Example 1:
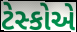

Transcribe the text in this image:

ટેસ્કોએ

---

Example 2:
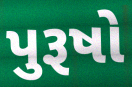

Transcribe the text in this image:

પુરૂષો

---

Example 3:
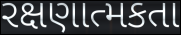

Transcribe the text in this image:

રક્ષણાત્મકતા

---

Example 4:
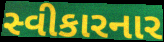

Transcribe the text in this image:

સ્વીકારનાર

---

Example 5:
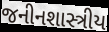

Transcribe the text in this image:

જનીનશાસ્ત્રીય